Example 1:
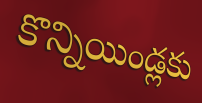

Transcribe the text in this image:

కొన్నియిండ్లకు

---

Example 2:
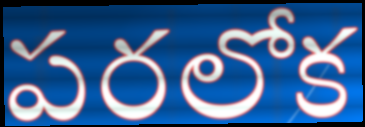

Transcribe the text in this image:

పరలోక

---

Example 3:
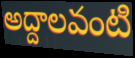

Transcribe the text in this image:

అద్దాలవంటి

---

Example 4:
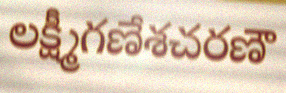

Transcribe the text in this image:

లక్ష్మీగణేశచరణౌ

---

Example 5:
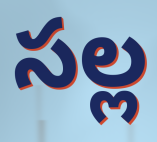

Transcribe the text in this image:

సల్ల